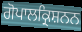
ਗੋਪਾਲਕ੍ਰਿਸ਼ਨਨ